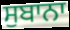
ਸੁਬਾਨਾ